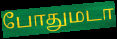
போதுமடா